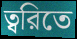
ত্বরিতে